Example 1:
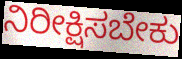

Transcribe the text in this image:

ನಿರೀಕ್ಷಿಸಬೇಕು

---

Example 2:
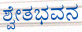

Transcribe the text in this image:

ಶ್ವೇತಭವನ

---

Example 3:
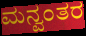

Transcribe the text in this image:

ಮನ್ವಂತರ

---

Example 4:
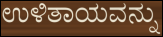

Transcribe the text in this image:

ಉಳಿತಾಯವನ್ನು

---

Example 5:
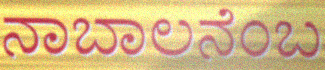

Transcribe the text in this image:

ನಾಬಾಲನೆಂಬ